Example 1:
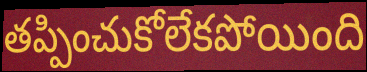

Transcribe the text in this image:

తప్పించుకోలేకపోయింది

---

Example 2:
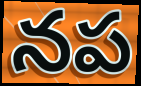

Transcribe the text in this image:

నప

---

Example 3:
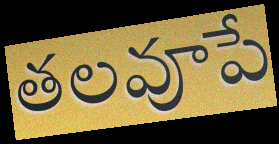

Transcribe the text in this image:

తలవూపే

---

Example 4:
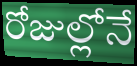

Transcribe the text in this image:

రోజుల్లోనే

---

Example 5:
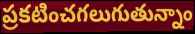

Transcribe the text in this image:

ప్రకటించగలుగుతున్నాం